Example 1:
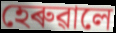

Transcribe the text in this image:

হেৰুৱালে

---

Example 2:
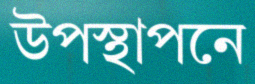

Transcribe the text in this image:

উপস্থাপনে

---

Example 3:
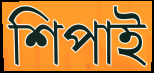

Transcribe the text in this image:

শিপাই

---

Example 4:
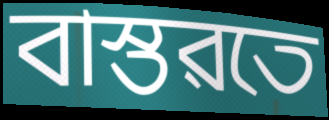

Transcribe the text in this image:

বাস্তৱতে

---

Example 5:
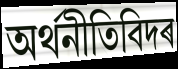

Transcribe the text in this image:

অৰ্থনীতিবিদৰ